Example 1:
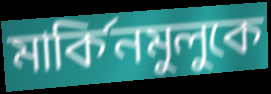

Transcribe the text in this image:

মার্কিনমুলুকে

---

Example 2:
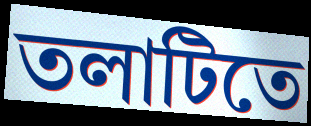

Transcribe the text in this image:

তলাটিতে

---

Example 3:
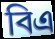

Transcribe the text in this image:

বিএ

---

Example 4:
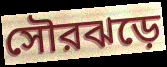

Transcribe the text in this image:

সৌরঝড়ে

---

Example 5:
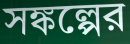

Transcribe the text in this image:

সঙ্কল্পের